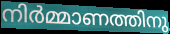
നിർമ്മാണത്തിനു